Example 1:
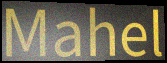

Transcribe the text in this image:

Mahel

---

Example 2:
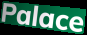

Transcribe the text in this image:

Palace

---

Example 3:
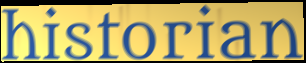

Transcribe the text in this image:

historian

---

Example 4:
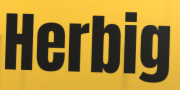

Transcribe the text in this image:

Herbig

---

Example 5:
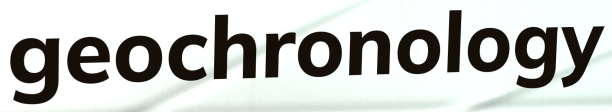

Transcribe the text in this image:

geochronology